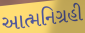
આત્મનિગ્રહી